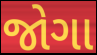
જોગા